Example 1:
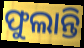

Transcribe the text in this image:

ଫୁଲାନ୍ତି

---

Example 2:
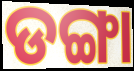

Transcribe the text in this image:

ଡଙ୍ଗା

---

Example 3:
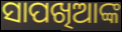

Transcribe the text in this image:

ସାପଖିଆଙ୍କ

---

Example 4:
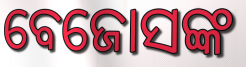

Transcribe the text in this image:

ବେଜୋସଙ୍କ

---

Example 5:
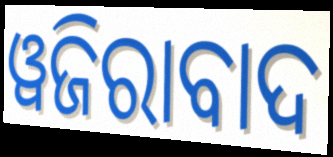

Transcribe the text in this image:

ୱଜିରାବାଦ